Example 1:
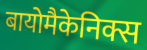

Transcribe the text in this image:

बायोमैकेनिक्स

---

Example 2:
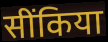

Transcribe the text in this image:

सींकिया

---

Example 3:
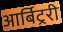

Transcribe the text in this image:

आर्बिट्ररी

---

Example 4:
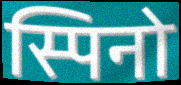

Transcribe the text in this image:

स्पिनो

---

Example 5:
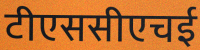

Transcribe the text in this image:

टीएससीएचई